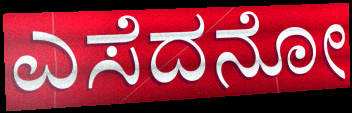
ಎಸೆದನೋ